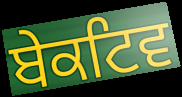
ਬੇਕਟਿਵ